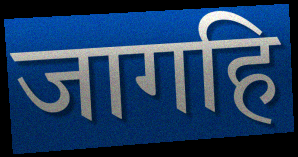
जागहि